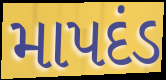
માપદંડ